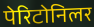
पेरिटोनिलर